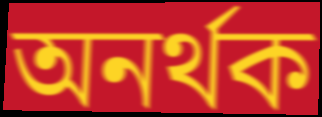
অনৰ্থক